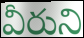
వీరుని